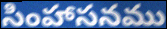
సింహాసనము